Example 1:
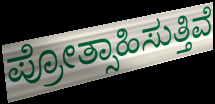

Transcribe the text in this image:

ಪ್ರೋತ್ಸಾಹಿಸುತ್ತಿವೆ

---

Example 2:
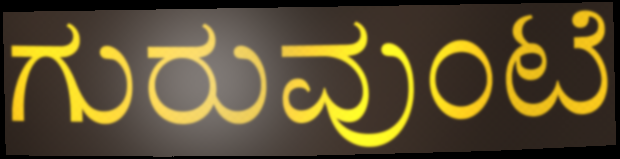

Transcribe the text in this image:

ಗುರುವುಂಟೆ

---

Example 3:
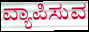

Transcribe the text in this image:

ವ್ಯಾಪಿಸುವ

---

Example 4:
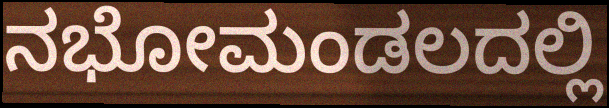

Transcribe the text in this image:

ನಭೋಮಂಡಲದಲ್ಲಿ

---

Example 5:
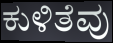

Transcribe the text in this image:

ಕುಳಿತೆವು